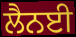
ਲੈਨਈ